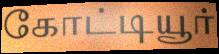
கோட்டியூர்